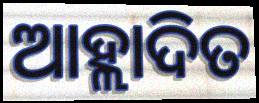
ଆହ୍ଲାଦିତ